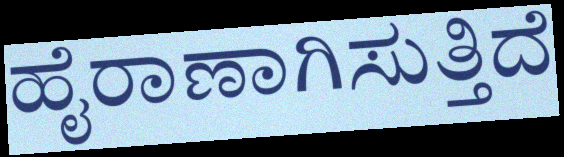
ಹೈರಾಣಾಗಿಸುತ್ತಿದೆ